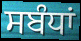
ਸਬੰਧਾਂ